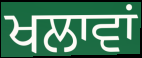
ਖਲਾਵਾਂ